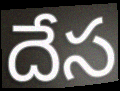
దేస